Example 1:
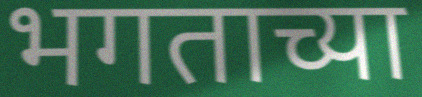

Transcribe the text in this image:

भगताच्या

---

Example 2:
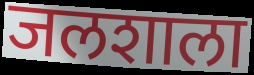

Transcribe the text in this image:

जलशाला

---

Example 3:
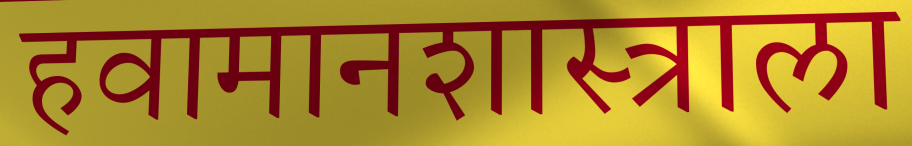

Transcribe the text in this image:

हवामानशास्त्राला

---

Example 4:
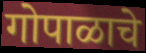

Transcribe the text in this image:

गोपाळाचे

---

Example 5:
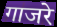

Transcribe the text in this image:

गाजरे